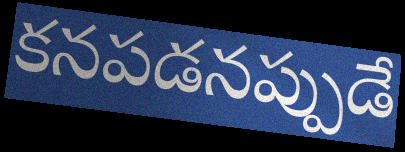
కనపడనప్పుడే